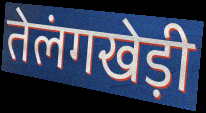
तेलंगखेड़ी